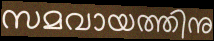
സമവായത്തിനു